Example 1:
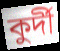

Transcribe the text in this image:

কুর্দী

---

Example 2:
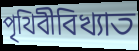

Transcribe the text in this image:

পৃথিবীবিখ্যাত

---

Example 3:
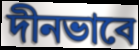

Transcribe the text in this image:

দীনভাবে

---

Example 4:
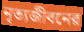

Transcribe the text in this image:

নৃত্যজীবনের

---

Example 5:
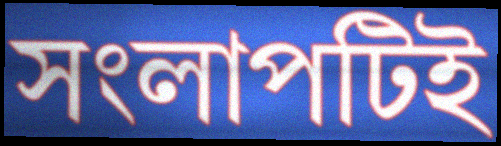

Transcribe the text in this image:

সংলাপটিই